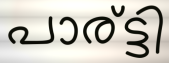
പാര്ട്ടി